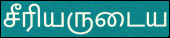
சீரியருடைய